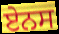
ਏਨਸ